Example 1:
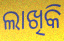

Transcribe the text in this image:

ଲାଖିକି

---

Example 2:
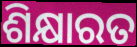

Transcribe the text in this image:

ଶିକ୍ଷାରତ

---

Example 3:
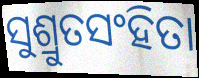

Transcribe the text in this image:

ସୁଶ୍ରୁତସଂହିତା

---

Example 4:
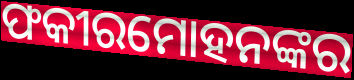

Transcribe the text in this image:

ଫକୀରମୋହନଙ୍କର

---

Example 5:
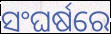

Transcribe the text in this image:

ସଂଘର୍ଷରେ